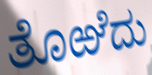
ತೊಱೆದು